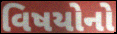
વિષયોનો